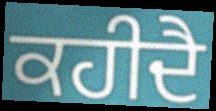
ਕਹੀਦੈ